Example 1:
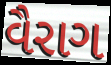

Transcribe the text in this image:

વૈરાગ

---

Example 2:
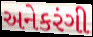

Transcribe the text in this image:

અનેકરંગી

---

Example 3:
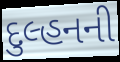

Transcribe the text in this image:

દુલ્હનની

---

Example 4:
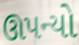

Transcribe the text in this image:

ઊપન્યો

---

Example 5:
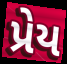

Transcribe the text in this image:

પ્રેય